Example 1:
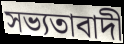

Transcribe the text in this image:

সভ্যতাবাদী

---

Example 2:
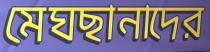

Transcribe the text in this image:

মেঘছানাদের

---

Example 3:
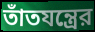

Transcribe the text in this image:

তাঁতযন্ত্রের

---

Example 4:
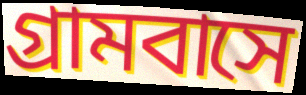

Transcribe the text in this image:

গ্রামবাসে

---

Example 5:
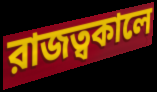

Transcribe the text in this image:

রাজত্বকালে